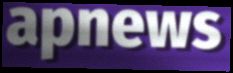
apnews